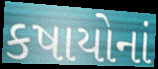
કષાયોનાં